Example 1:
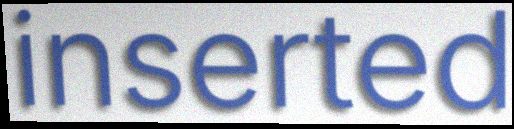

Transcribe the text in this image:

inserted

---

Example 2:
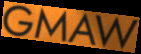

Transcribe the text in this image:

GMAW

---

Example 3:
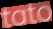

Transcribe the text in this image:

tato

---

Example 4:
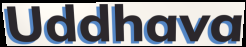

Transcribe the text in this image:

Uddhava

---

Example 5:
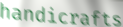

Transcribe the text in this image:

handicrafts